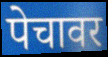
पेचावर